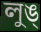
লুঙ্